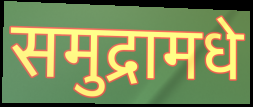
समुद्रामधे